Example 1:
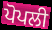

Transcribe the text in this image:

ਪੋਪਲੀ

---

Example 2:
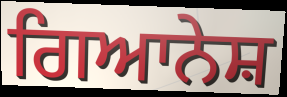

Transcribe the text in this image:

ਗਿਆਨੇਸ਼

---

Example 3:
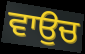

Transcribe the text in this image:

ਵਾਉਚ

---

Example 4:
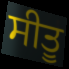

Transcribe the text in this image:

ਸੀਤੂ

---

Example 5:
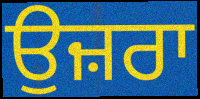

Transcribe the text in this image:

ਉਜ਼ਰਾ